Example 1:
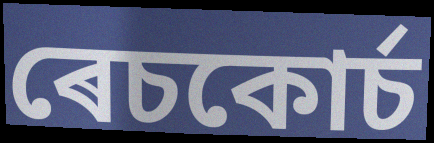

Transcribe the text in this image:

ৰেচকোৰ্চ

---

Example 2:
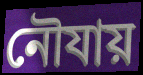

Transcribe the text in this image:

নৌযায়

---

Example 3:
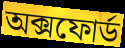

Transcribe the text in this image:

অক্সফোৰ্ড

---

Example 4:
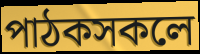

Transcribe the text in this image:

পাঠকসকলে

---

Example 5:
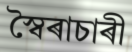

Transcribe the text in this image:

স্বৈৰাচাৰী